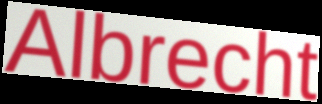
Albrecht